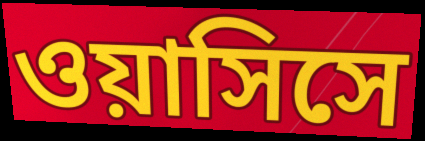
ওয়াসিসে